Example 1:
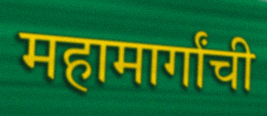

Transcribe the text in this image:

महामार्गांची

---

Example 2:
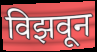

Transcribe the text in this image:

विझवून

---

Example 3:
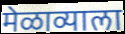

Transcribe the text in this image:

मेळाव्याला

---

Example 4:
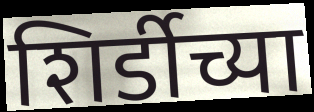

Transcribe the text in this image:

शिर्डीच्या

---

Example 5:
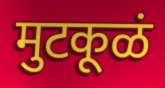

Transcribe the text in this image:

मुटकूळं